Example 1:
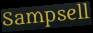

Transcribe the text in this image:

Sampsell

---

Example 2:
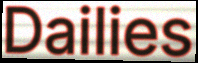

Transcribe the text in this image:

Dailies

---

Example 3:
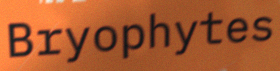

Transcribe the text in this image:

Bryophytes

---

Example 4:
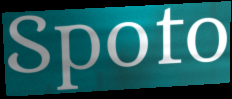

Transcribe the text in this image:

Spoto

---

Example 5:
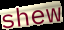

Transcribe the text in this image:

shew